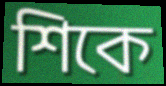
শিকে